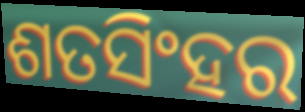
ଶତସିଂହର